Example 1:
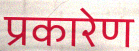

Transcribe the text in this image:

प्रकारेण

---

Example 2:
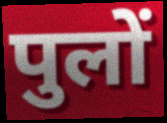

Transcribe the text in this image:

पुलों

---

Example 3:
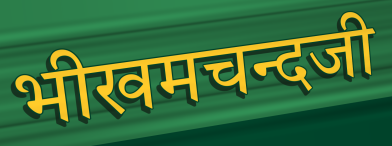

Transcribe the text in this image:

भीखमचन्दजी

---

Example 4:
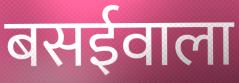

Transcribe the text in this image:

बसईवाला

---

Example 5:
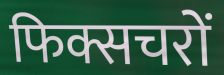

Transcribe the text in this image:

फिक्सचरों